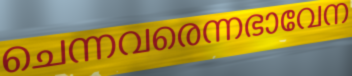
ചെന്നവരെന്നഭാവേന